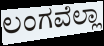
ಲಂಗವೆಲ್ಲಾ